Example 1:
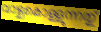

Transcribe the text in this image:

വാഴ്ചകൊള്ളുന്നതു്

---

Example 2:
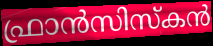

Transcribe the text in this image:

ഫ്രാൻസിസ്കൻ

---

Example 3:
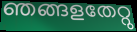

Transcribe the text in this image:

ഞങ്ങളതേറ്റു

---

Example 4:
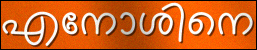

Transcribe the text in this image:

എനോശിനെ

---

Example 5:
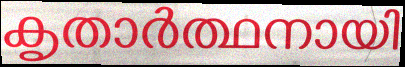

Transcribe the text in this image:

കൃതാർത്ഥനായി